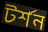
টর্শন